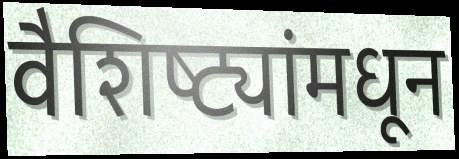
वैशिष्ट्यांमधून